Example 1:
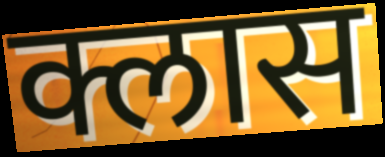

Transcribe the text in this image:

क्लास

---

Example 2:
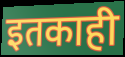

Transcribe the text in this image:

इतकाही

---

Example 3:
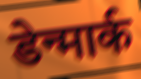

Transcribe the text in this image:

डेन्मार्क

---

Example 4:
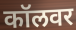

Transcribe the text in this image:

कॉलवर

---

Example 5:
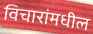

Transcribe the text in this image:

विचारांमधील